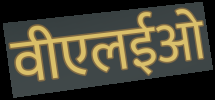
वीएलईओ